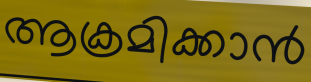
ആക്രമിക്കാൻ